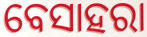
ବେସାହରା